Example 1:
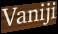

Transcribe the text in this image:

Vaniji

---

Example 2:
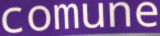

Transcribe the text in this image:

comune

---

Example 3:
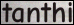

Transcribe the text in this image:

tanthi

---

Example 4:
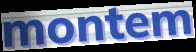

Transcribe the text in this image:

montem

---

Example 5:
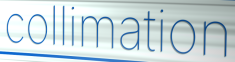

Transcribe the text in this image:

collimation